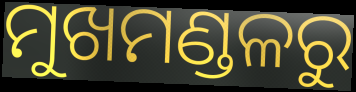
ମୁଖମଣ୍ଡଳରୁ